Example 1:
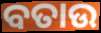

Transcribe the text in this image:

ବତାଉ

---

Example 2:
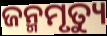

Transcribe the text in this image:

ଜନ୍ମମୃତ୍ୟୁ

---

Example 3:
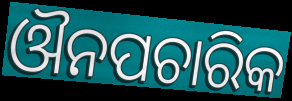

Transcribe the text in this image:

ଔନପଚାରିକ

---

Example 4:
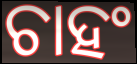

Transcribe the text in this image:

ଚାହଂ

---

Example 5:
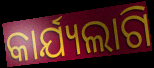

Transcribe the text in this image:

କାର୍ଯ୍ୟଲାଗି